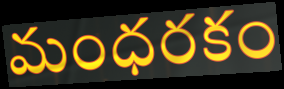
మంధరకం